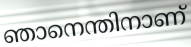
ഞാനെന്തിനാണ്